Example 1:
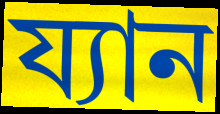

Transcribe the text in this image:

য্যান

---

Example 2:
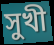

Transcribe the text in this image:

সুখী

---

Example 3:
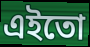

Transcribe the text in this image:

এইতো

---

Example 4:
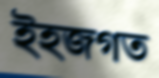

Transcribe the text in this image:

ইহজগত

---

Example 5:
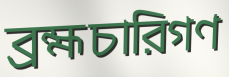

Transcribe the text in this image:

ব্রহ্মচারিগণ